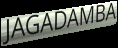
JAGADAMBA